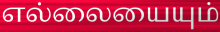
எல்லையையும்